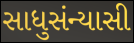
સાધુસંન્યાસી